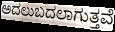
ಅದಲುಬದಲಾಗುತ್ತವೆ